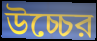
উচ্চের